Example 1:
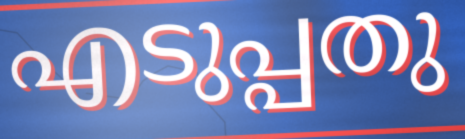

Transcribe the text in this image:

എടുപ്പതു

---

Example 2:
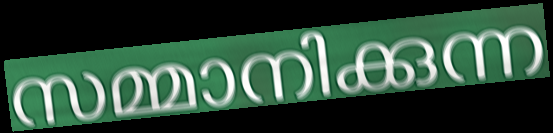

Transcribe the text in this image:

സമ്മാനിക്കുന്ന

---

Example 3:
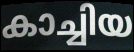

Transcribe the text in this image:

കാച്ചിയ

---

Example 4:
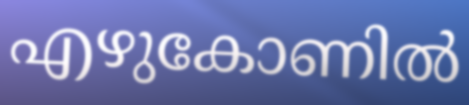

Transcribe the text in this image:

എഴുകോണിൽ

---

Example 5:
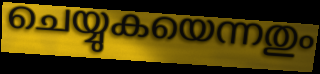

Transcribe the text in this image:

ചെയ്യുകയെന്നതും